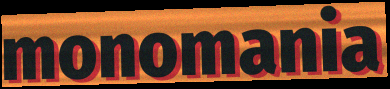
monomania